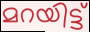
മറയിട്ട്